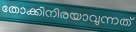
തോക്കിനിരയാവുന്നത്